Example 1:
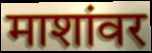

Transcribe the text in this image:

माशांवर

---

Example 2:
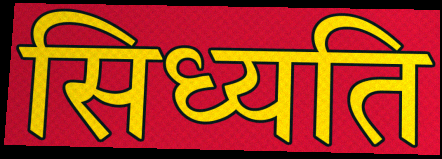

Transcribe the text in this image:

सिध्यति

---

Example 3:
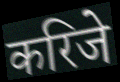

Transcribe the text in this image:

करिजे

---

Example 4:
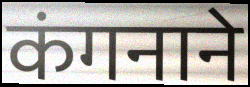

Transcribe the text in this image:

कंगनाने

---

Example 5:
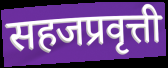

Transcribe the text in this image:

सहजप्रवृत्ती